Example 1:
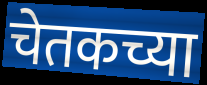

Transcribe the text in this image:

चेतकच्या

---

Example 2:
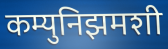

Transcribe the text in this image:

कम्युनिझमशी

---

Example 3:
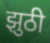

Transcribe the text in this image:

झुठी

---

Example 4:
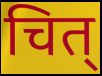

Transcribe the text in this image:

चित्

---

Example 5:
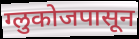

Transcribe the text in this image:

ग्लुकोजपासून